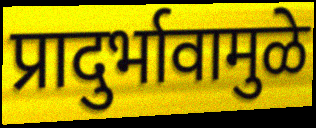
प्रादुर्भावामुळे